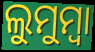
ଲୁମୁମ୍ବା